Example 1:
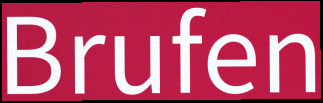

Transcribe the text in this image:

Brufen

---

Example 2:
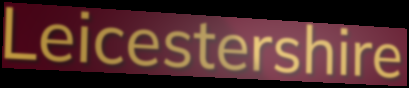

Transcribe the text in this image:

Leicestershire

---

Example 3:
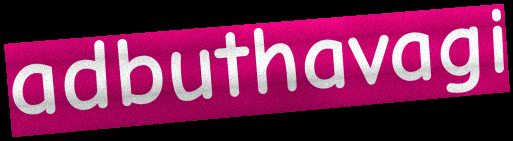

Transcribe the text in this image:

adbuthavagi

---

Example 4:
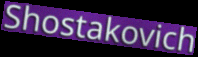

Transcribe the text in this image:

Shostakovich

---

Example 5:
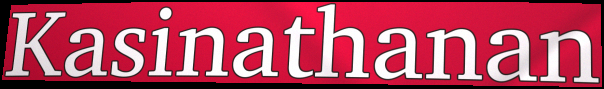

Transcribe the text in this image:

Kasinathanan